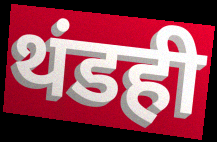
थंडही